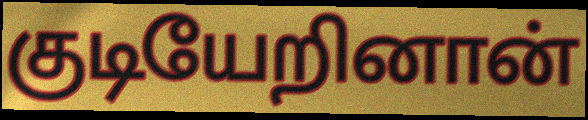
குடியேறினான்